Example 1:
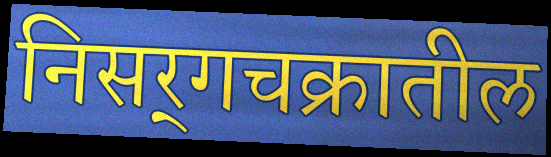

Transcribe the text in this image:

निसर्गचक्रातील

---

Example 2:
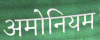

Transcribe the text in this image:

अमोनियम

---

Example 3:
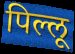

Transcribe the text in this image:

पिल्लू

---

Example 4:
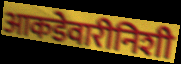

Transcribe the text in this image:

आकडेवारीनिशी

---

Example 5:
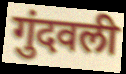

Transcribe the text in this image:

गुंदवली